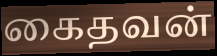
கைதவன்